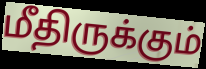
மீதிருக்கும்